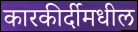
कारकीर्दीमधील